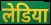
लेडिया